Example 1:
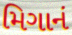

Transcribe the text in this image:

મિગાનં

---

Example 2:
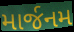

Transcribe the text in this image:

માર્જનમ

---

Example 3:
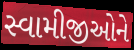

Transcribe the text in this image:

સ્વામીજીઓને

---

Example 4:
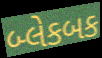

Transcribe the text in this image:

બ્લેકબક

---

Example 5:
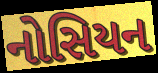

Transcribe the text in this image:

નોસિયન